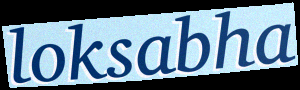
loksabha